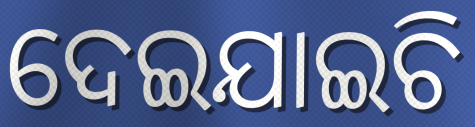
ଦେଇଯାଇଚି